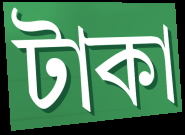
টাকা